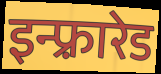
इन्फ़्रारेड